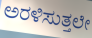
ಅರಳಿಸುತ್ತಲೇ